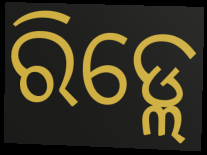
ରିଡ୍ଲେ